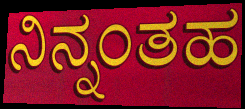
ನಿನ್ನಂತಹ